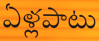
ఏళ్లపాటు